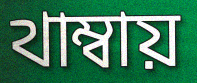
থাম্বায়